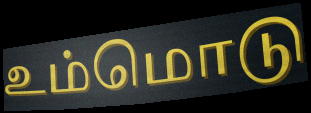
உம்மொடு